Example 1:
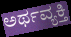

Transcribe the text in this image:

ಅರ್ಥವ್ಯಕ್ತಿ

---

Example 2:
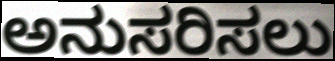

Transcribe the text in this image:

ಅನುಸರಿಸಲು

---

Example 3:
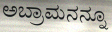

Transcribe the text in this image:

ಅಬ್ರಾಮನನ್ನೂ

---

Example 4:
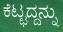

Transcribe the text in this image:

ಕೆಟ್ಟದ್ದನ್ನು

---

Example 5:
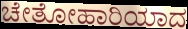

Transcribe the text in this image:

ಚೇತೋಹಾರಿಯಾದ